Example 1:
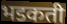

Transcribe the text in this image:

भडकती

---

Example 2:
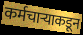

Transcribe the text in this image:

कर्मचाऱ्याकडून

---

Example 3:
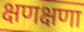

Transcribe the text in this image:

क्षणक्षणा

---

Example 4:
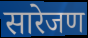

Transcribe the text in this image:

सारेजण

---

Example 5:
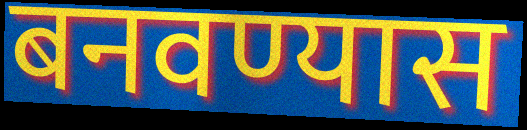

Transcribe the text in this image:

बनवण्यास